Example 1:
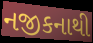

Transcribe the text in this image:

નજીકનાથી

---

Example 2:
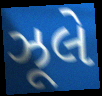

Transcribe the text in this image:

ઝૂલે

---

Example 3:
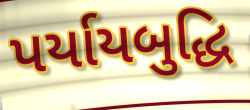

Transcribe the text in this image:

પર્યાયબુદ્ધિ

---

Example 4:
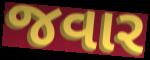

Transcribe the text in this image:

જવાર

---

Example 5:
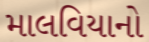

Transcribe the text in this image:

માલવિયાનો